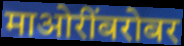
माओरींबरोबर